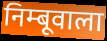
निम्बूवाला